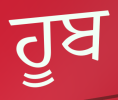
ਹੂਬ